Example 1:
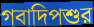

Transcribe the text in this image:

গবাদিপশুর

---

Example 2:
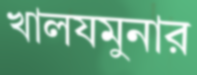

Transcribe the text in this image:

খালযমুনার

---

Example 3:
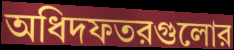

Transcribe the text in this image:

অধিদফতরগুলোর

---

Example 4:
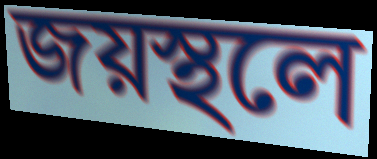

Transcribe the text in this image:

জয়স্থলে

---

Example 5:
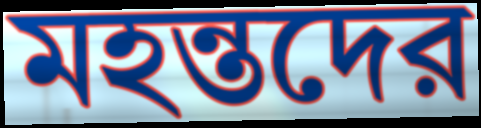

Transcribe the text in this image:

মহন্তদের